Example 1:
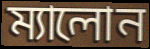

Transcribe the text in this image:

ম্যালোন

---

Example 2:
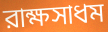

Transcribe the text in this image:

রাক্ষসাধম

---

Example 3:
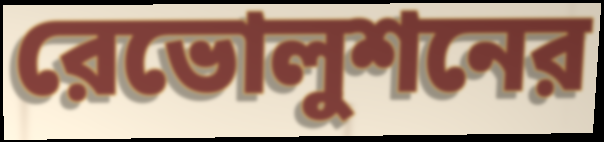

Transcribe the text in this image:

রেভোলুশনের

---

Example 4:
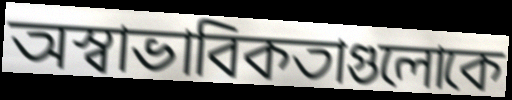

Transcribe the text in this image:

অস্বাভাবিকতাগুলোকে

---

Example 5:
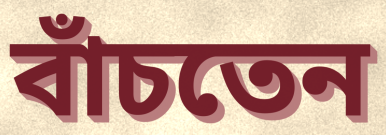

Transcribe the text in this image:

বাঁচতেন